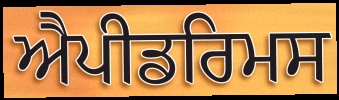
ਐਪੀਡਰਿਮਸ